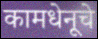
कामधेनूचे